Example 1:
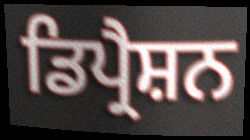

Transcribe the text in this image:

ਡਿਪ੍ਰੈਸ਼ਨ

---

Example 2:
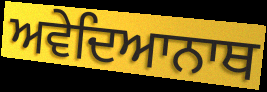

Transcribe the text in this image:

ਅਵੇਦਿਆਨਾਥ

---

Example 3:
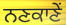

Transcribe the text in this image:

ਨਣਕਾਣੇਂ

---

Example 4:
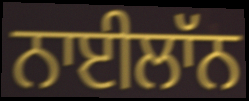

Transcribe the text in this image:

ਨਾਈਲਾੱਨ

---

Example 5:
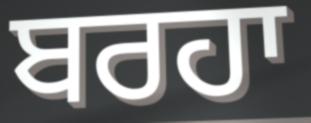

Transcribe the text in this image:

ਬਰਹਾ